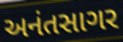
અનંતસાગર